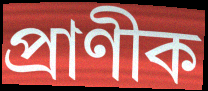
প্ৰাণীক